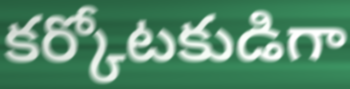
కర్కోటకుడిగా